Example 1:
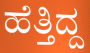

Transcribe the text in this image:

ಹೆತ್ತಿದ್ದ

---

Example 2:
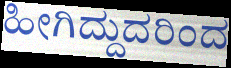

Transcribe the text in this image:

ಹೀಗಿದ್ದುದರಿಂದ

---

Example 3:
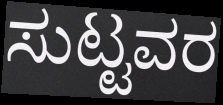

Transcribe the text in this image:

ಸುಟ್ಟವರ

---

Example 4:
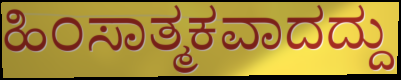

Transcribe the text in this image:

ಹಿಂಸಾತ್ಮಕವಾದದ್ದು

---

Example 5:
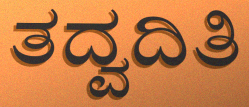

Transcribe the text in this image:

ತದ್ವದಿತಿ